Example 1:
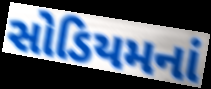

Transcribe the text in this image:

સોડિયમનાં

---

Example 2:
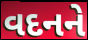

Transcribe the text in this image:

વદનને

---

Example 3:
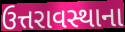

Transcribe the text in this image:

ઉત્તરાવસ્થાના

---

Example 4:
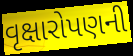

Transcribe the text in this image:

વૃક્ષારોપણની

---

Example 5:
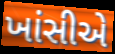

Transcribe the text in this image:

ખાંસીએ